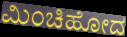
ಮಿಂಚಿಹೋದ